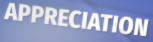
APPRECIATION